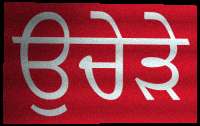
ਉਚੇੜੇ